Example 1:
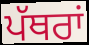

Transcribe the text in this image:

ਪੱਥਰਾਂ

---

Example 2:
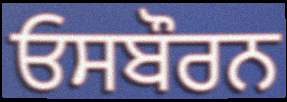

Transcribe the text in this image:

ਓਸਬੌਰਨ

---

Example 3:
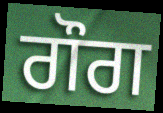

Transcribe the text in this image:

ਗੌਗ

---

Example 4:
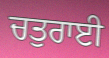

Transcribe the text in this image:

ਚਤੁਰਾਈ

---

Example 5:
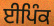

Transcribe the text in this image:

ਈਪਿੰਕ